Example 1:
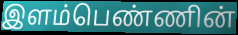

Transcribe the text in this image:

இளம்பெண்ணின்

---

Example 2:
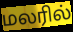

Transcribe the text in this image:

மலரில்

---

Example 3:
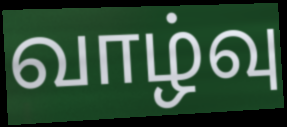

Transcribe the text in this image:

வாழ்வு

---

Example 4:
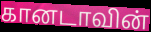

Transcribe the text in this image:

கானடாவின்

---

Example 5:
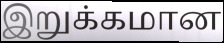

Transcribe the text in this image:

இறுக்கமான